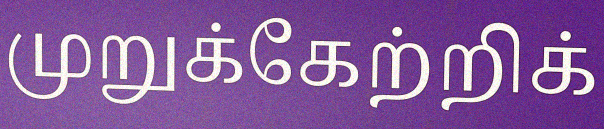
முறுக்கேற்றிக்